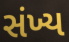
સંખ્ય